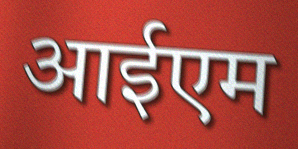
आईएम